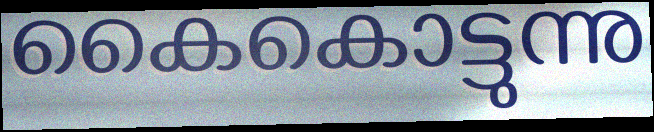
കൈകൊട്ടുന്നു